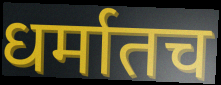
धर्मातच